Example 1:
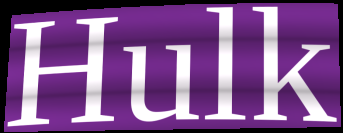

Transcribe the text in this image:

Hulk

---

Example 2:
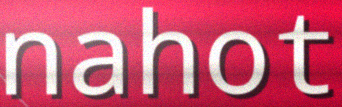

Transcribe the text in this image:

nahot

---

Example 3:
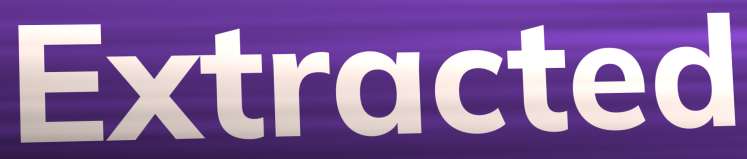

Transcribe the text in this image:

Extracted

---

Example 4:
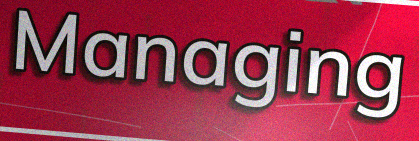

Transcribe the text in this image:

Managing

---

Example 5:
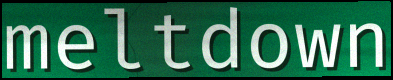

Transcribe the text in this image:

meltdown